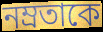
নম্রতাকে